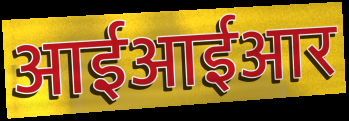
आईआईआर